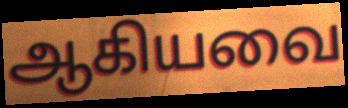
ஆகியவை